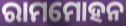
ରାମମୋହନ